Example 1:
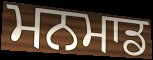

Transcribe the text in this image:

ਮਨਮਾਡ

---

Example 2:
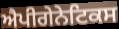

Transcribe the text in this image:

ਐਪੀਗੇਨੇਟਿਕਸ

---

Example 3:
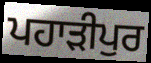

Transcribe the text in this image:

ਪਹਾੜੀਪੁਰ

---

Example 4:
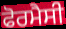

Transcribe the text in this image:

ਫੋਰਮੈਸੀ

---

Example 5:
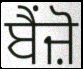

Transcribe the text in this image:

ਬੈਂਜ਼ੋ